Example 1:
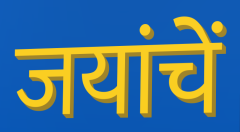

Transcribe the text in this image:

जयांचें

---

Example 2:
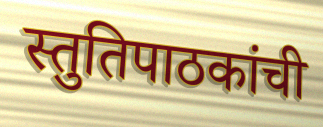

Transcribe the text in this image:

स्तुतिपाठकांची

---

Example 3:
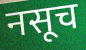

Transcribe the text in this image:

नसूच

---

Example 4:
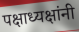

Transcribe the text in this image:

पक्षाध्यक्षांनी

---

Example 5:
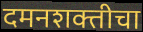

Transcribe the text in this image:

दमनशक्तीचा